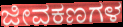
ಜೀವಕಣಗಳ